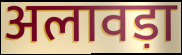
अलावड़ा